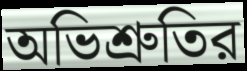
অভিশ্রুতির